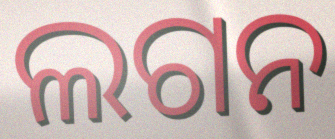
ଲଗନ